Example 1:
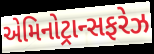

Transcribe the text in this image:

એમિનોટ્રાન્સફરેઝ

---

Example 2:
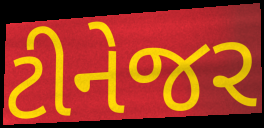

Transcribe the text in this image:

ટીનેજર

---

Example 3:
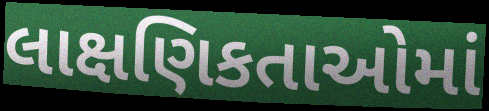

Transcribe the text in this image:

લાક્ષણિકતાઓમાં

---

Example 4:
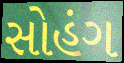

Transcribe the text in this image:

સોહંગ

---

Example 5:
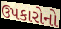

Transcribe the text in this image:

ઉપકારોનો